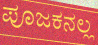
ಪೂಜಕನಲ್ಲ